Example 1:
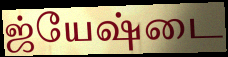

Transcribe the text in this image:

ஜ்யேஷ்டை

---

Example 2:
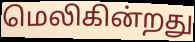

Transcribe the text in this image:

மெலிகின்றது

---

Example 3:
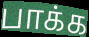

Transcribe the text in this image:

பாக்க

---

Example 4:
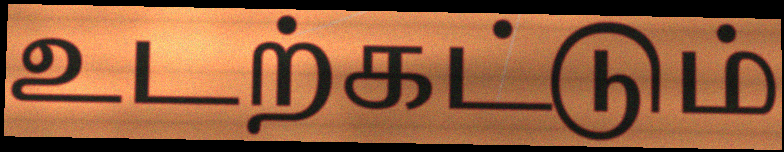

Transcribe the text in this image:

உடற்கட்டும்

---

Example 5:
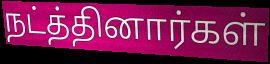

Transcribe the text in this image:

நட்த்தினார்கள்